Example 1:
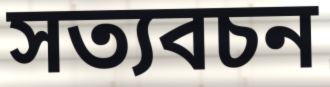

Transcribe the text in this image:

সত্যবচন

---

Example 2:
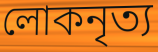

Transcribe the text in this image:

লোকনৃত্য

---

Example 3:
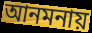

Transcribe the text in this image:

আনমনায়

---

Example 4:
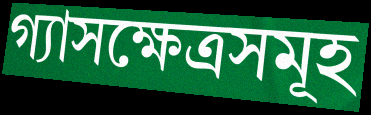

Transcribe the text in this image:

গ্যাসক্ষেত্রসমূহ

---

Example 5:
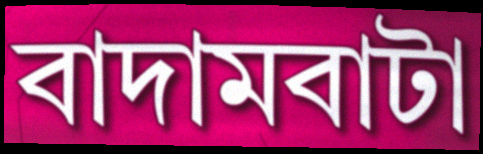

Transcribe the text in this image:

বাদামবাটা